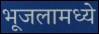
भूजलामध्ये